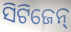
ସିଟିଜେନ୍